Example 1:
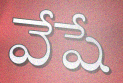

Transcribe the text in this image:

వేషే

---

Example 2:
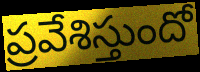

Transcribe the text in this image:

ప్రవేశిస్తుందో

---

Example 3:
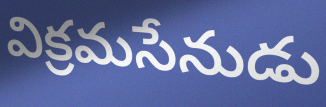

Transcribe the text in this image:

విక్రమసేనుడు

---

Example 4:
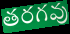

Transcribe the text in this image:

తరగవు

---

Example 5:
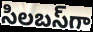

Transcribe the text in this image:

సిలబస్‌గా